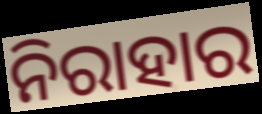
ନିରାହାର